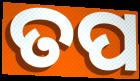
ତପ